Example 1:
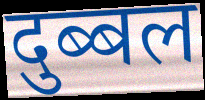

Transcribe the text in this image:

दुब्बल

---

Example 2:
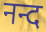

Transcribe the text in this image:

नन्द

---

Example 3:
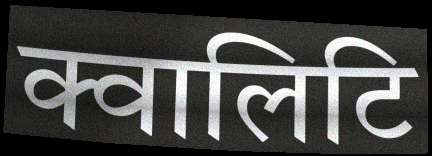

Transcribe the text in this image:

क्वालिटि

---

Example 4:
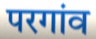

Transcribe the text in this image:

परगांव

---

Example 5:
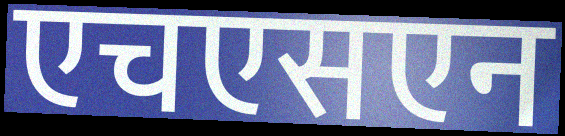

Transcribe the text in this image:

एचएसएन